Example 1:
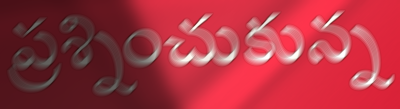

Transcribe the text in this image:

ప్రశ్నించుకున్న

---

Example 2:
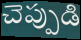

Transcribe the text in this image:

చెప్పుడి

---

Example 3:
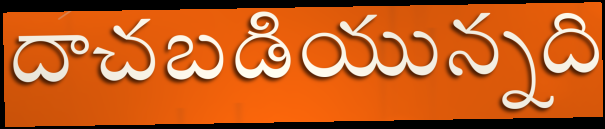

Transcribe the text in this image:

దాచబడియున్నది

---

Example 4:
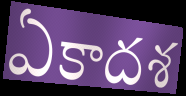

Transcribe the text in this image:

ఏకాదశ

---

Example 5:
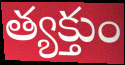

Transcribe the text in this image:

త్యక్తుం